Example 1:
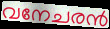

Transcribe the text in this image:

വനേചരൻ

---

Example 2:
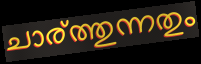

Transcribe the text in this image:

ചാര്ത്തുന്നതും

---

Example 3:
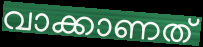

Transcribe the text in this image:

വാക്കാണത്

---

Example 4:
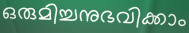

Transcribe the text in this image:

ഒരുമിച്ചനുഭവിക്കാം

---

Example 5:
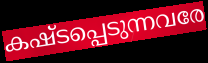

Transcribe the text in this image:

കഷ്ടപ്പെടുന്നവരേ